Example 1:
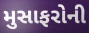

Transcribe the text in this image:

મુસાફરોની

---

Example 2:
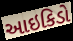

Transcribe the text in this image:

આઇકિડો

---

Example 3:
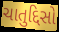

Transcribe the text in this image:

ચાતુદ્દિસો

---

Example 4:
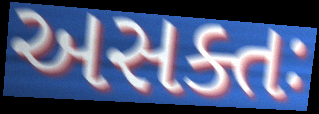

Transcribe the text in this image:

અસક્તઃ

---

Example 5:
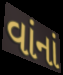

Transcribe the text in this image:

વાંનાં